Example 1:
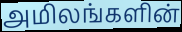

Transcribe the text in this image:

அமிலங்களின்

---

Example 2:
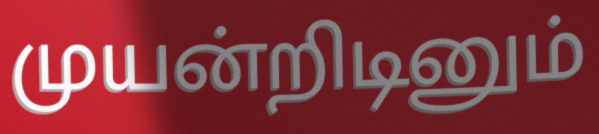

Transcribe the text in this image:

முயன்றிடினும்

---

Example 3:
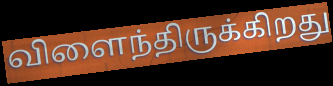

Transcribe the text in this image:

விளைந்திருக்கிறது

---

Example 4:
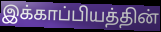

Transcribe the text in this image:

இக்காப்பியத்தின்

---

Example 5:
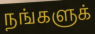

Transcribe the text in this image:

நங்களுக்